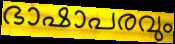
ഭാഷാപരവും